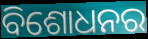
ବିଶୋଧନର